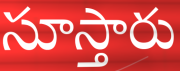
సూస్తారు